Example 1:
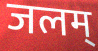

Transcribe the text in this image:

जलम्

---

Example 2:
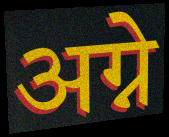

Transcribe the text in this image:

अग्ने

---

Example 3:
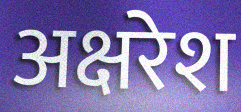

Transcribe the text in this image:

अक्षरेश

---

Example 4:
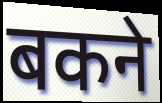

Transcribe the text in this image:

बकने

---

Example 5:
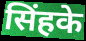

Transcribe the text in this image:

सिंहके